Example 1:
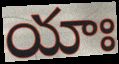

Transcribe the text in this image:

యాః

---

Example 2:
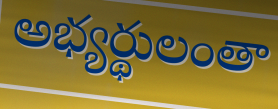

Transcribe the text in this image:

అభ్యర్థులంతా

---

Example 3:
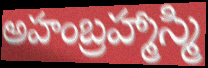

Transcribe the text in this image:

అహంబ్రహ్మాస్మి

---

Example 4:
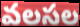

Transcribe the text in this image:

వలసల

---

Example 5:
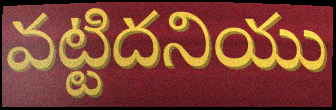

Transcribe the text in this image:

వట్టిదనియు